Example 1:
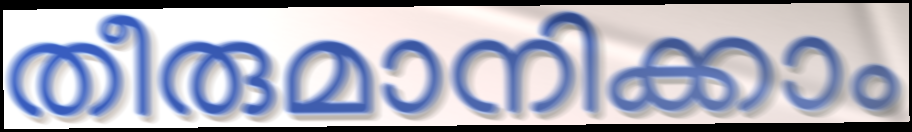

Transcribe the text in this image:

തീരുമാനിക്കാം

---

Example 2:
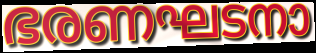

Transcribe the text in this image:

ഭരണഘടനാ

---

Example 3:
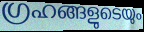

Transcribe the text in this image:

ഗ്രഹങ്ങളുടെയും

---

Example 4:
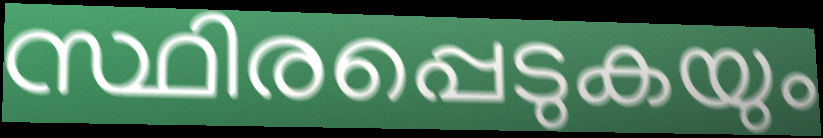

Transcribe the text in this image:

സ്ഥിരപ്പെടുകയും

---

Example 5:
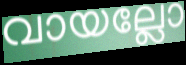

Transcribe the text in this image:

വായല്ലോ